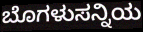
ಬೊಗಳುಸನ್ನಿಯ